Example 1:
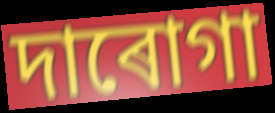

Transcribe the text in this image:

দাৰোগা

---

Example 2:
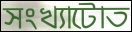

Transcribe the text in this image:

সংখ্যাটোত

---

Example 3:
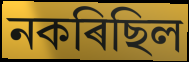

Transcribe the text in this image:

নকৰিছিল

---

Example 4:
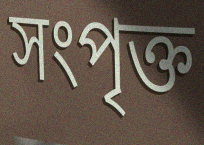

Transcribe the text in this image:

সংপৃক্ত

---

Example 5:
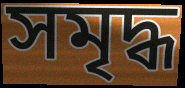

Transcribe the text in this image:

সমৃদ্ধ